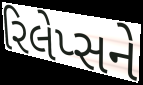
રિલેપ્સને